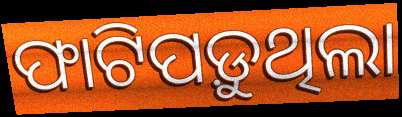
ଫାଟିପଡ଼ୁଥିଲା